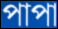
পাপা